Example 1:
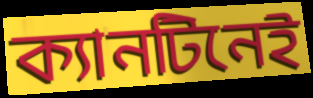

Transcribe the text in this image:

ক্যানটিনেই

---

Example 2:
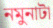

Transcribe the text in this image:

নমুনাটা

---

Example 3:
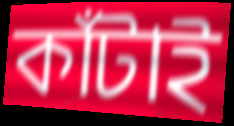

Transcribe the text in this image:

কাঁটাই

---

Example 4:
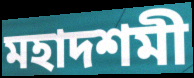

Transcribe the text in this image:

মহাদশমী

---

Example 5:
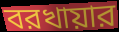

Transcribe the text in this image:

বরখায়ার